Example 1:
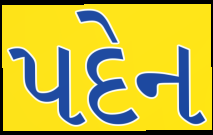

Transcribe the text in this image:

પદેન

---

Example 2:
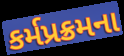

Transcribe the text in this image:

કર્મપ્રક્રમના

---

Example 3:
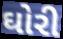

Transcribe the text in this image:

ઘોરી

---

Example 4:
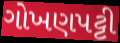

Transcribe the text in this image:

ગોખણપટ્ટી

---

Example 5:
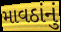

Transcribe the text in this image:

માવઠાંનું